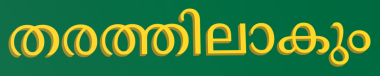
തരത്തിലാകും